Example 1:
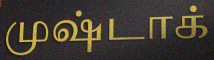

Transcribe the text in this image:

முஷ்டாக்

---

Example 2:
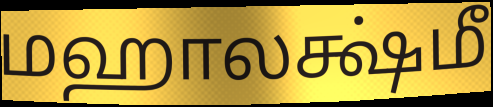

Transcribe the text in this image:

மஹாலக்ஷ்மீ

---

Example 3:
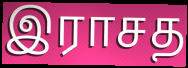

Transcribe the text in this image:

இராசத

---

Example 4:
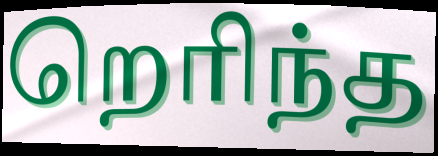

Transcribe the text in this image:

றெரிந்த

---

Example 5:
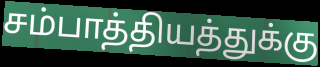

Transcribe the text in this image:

சம்பாத்தியத்துக்கு